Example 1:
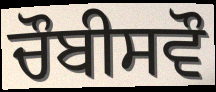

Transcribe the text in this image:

ਚੌਬੀਸਵੌ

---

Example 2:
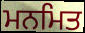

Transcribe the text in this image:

ਮਨਮਿਤ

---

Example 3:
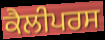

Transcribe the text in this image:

ਕੈਲੀਪਰਸ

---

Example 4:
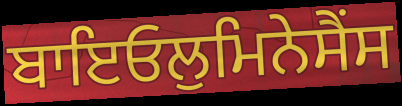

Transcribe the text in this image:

ਬਾਇਓਲੁਮਿਨੇਸੈਂਸ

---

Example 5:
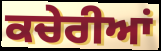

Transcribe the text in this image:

ਕਚੇਰੀਆਂ